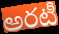
అరటీ